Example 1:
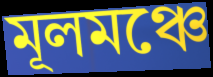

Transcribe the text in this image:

মূলমঞ্চে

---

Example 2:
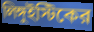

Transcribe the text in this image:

লিঙ্গুইস্টিকের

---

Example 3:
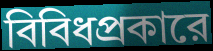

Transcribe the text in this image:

বিবিধপ্রকারে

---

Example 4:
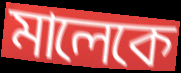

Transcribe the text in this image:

মালেকে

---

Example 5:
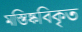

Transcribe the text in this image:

মস্তিষ্কবিকৃত